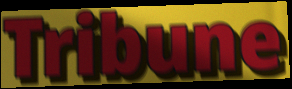
Tribune